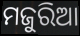
ମଜୁରିଆ